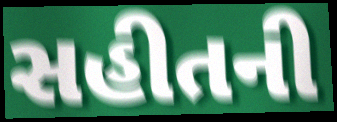
સહીતની